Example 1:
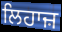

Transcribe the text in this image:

ਲਿਹਾਜ਼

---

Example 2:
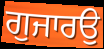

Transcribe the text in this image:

ਗੁਜਾਰਉ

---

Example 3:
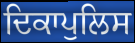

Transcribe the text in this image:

ਦਿਕਾਪੁਲਿਸ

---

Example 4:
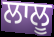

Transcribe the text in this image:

ਲਾਲੂ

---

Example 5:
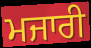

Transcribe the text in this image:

ਮਜਾਰੀ